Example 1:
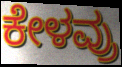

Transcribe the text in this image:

ಕೇಳವ್ರು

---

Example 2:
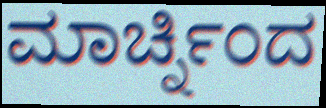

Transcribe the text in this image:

ಮಾರ್ಚ್ನಿಂದ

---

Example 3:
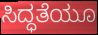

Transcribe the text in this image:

ಸಿದ್ಧತೆಯೂ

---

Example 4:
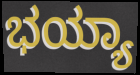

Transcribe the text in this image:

ಭಯ್ಯಾ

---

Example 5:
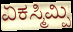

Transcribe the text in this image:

ಏಕಸ್ಮಿಮ್ಪಿ